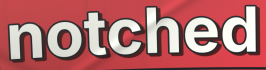
notched